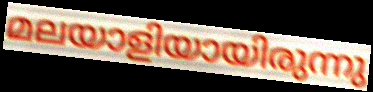
മലയാളിയായിരുന്നു